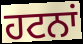
ਹਟਨਾਂ